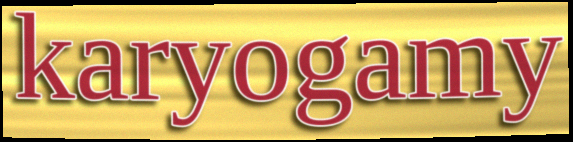
karyogamy